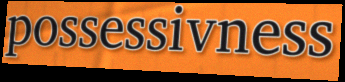
possessivness